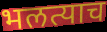
भलत्याच